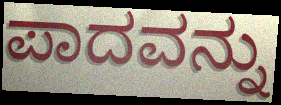
ಪಾದವನ್ನು